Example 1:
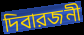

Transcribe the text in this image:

দিবারজনী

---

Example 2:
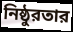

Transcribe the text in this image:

নিষ্ঠুরতার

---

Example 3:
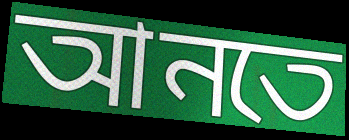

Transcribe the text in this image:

আনতে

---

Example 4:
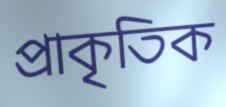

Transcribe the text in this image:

প্রাকৃতিক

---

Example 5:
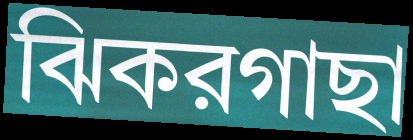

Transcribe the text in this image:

ঝিকরগাছা